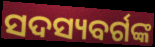
ସଦସ୍ୟବର୍ଗଙ୍କ